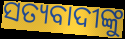
ସତ୍ୟବାଦୀଙ୍କୁ